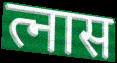
त्नास